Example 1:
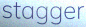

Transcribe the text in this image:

stagger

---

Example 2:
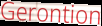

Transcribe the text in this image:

Gerontion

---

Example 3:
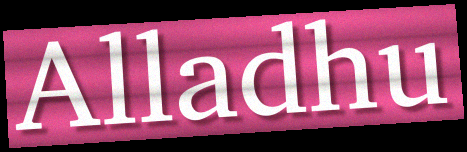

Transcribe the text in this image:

Alladhu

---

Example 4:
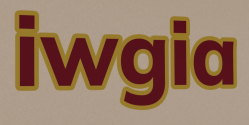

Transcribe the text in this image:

iwgia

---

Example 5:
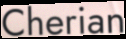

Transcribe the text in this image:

Cherian